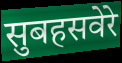
सुबहसवेरे